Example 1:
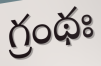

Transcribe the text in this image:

గ్రంథః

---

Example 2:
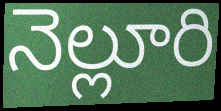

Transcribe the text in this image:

నెల్లూరి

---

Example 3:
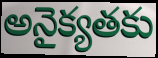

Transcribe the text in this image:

అనైక్యతకు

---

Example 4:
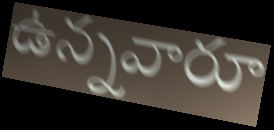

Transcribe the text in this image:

ఉన్నవారూ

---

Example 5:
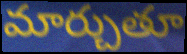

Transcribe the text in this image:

మార్చుతూ